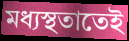
মধ্যস্থতাতেই